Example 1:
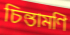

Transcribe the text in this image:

চিন্তামণি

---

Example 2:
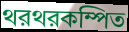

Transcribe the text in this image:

থরথরকম্পিত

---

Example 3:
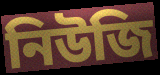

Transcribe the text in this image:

নিউজি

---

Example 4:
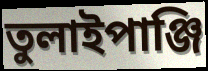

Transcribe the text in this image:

তুলাইপাঞ্জি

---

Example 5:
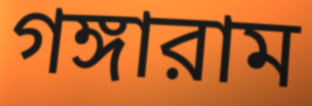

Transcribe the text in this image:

গঙ্গারাম